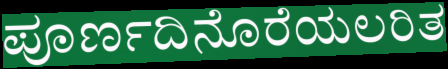
ಪೂರ್ಣದಿನೊರೆಯಲರಿತ